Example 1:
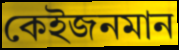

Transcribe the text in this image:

কেইজনমান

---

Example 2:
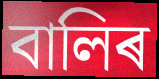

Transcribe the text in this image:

বালিৰ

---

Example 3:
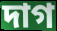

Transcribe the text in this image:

দাগ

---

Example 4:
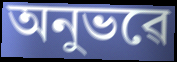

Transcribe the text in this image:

অনুভৱে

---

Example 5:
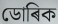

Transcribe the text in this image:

ডোৰিক